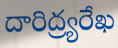
దారిద్ర్యరేఖ